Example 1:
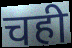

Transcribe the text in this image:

चही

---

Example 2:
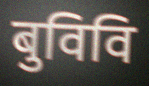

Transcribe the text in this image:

बुविवि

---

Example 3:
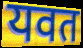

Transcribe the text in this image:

यवत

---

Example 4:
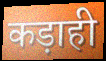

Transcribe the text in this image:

कड़ाही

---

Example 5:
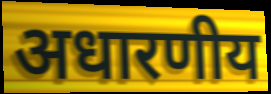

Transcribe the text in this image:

अधारणीय